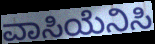
ವಾಸಿಯೆನಿಸಿ